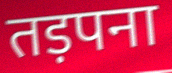
तड़पना